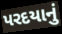
પરદયાનું